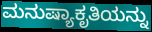
ಮನುಷ್ಯಾಕೃತಿಯನ್ನು